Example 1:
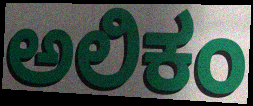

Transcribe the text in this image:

ಅಲಿಕಂ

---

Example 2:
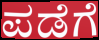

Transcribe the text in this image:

ಪಡೆಗೆ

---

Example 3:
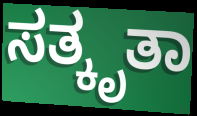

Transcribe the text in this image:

ಸತ್ಕೃತಾ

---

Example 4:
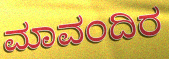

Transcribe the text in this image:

ಮಾವಂದಿರ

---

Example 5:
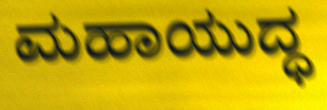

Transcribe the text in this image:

ಮಹಾಯುದ್ಧ